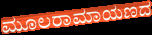
ಮೂಲರಾಮಾಯಣದ